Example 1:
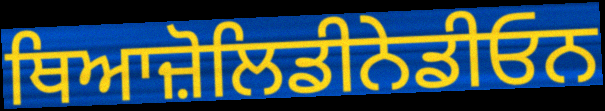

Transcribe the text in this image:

ਥਿਆਜ਼ੋਲਿਡੀਨੇਡੀਓਨ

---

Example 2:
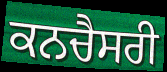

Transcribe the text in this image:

ਕਨਚੈਸਰੀ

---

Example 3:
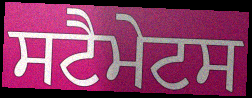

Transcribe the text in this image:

ਸਟੈਮੇਟਸ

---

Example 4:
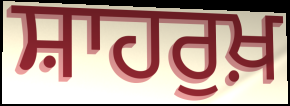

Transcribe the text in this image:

ਸ਼ਾਹਰੁਖ਼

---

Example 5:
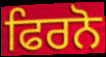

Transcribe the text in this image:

ਫਿਰਨੋ